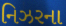
નિઝરના